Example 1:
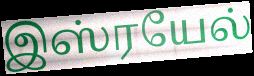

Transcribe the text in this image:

இஸ்ரயேல்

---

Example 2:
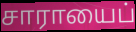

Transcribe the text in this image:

சாராயைப்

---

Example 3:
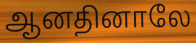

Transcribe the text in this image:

ஆனதினாலே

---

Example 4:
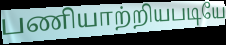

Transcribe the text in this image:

பணியாற்றியபடியே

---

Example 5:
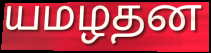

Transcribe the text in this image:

யமழதன